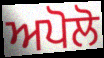
ਅਪੋਲੋ